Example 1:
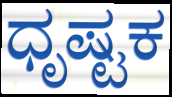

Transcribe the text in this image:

ಧೃಷ್ಟಕ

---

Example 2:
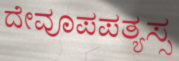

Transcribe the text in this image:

ದೇವೂಪಪತ್ಯಸ್ಸ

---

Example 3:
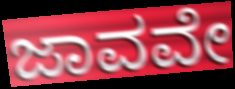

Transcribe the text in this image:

ಜಾವವೇ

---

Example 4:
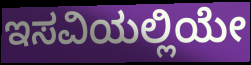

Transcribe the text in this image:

ಇಸವಿಯಲ್ಲಿಯೇ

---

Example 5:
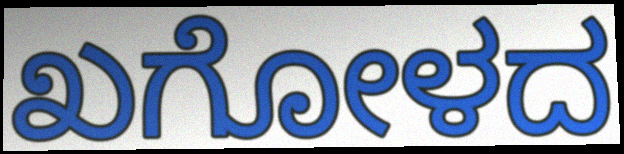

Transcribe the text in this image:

ಖಗೋಳದ